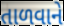
તાળવાને